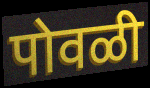
पोवळी